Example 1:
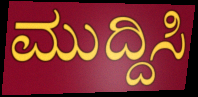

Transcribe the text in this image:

ಮುದ್ದಿಸಿ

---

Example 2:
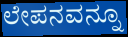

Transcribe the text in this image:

ಲೇಪನವನ್ನೂ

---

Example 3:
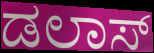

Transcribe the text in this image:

ಡಲಾಸ್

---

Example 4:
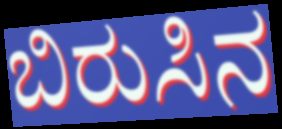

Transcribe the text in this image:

ಬಿರುಸಿನ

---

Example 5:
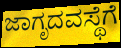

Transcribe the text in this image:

ಜಾಗೃದವಸ್ಥೆಗೆ